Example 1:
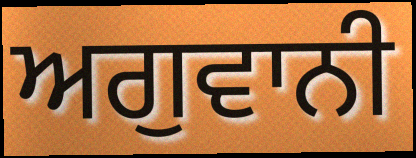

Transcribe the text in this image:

ਅਗੁਵਾਨੀ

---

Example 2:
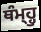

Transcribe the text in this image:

ਥੰਮ੍ਹ੍ਹੁ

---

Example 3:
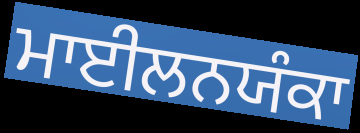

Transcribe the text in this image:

ਮਾਈਲਨਯੰਕਾ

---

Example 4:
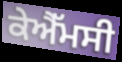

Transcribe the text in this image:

ਕੇਐੱਮਸੀ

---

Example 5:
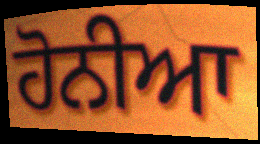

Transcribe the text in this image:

ਹੋਨੀਆ